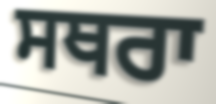
ਸਥਰਾ